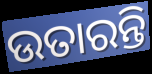
ଉତାରନ୍ତି